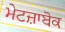
ਮੇਟਜ਼ਾਬੋਕ